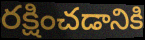
రక్షించడానికి